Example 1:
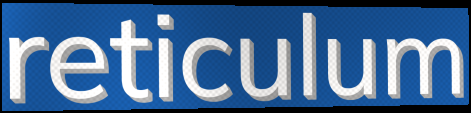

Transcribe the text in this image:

reticulum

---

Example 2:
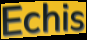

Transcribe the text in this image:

Echis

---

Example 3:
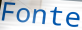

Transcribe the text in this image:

Fonte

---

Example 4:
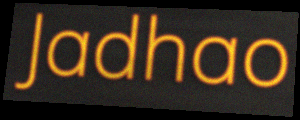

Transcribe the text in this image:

Jadhao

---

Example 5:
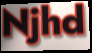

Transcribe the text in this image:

Njhd